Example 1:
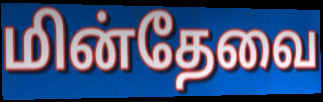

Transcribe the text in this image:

மின்தேவை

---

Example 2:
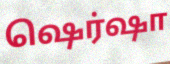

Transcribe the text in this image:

ஷெர்ஷா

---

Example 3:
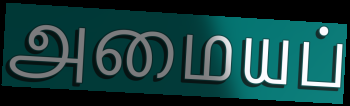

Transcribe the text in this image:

அமையப்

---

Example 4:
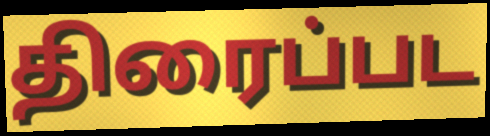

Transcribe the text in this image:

திரைப்பட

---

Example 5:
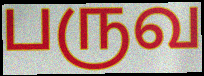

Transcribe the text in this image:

பருவ